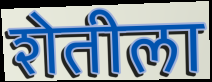
शेतीला